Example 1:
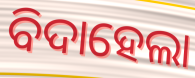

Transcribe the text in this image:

ବିଦାହେଲା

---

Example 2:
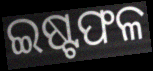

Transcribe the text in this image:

ଇଷ୍ଟଫଳ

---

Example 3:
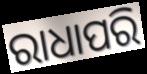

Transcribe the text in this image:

ରାଧାପରି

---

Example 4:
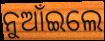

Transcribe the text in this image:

ନୁଆଁଇଲେ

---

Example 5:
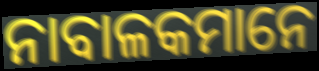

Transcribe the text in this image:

ନାବାଳକମାନେ